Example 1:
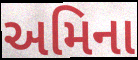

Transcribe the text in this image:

અમિના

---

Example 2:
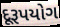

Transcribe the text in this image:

દૂરૂપયોગ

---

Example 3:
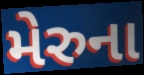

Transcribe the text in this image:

મેરુના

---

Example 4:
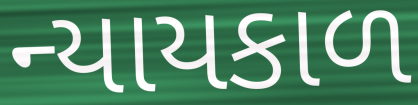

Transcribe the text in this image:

ન્યાયકાળ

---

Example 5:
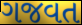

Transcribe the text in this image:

ગજવત